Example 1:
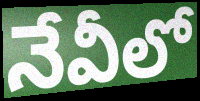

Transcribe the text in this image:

నేవీలో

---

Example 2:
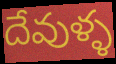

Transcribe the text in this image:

దేవుళ్ళ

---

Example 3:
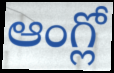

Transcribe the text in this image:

ఆంగ్లో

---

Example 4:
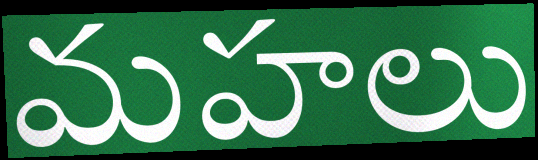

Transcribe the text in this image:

మహలు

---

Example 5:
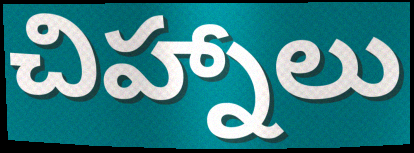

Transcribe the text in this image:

చిహ్నాలు